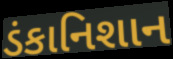
ડંકાનિશાન